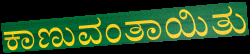
ಕಾಣುವಂತಾಯಿತು